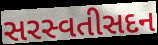
સરસ્વતીસદન